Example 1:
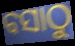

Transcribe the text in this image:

ବସାଠୁ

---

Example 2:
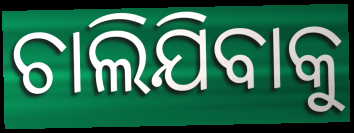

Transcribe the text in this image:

ଚାଲିଯିବାକୁ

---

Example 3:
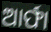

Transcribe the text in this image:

ଆର୍ଫା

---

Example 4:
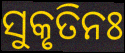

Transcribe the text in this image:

ସୁକୃତିନଃ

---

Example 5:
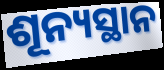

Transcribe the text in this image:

ଶୂନ୍ୟସ୍ଥାନ